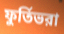
ফুর্তিভরা